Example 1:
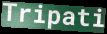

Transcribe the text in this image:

Tripati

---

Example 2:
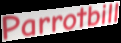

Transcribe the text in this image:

Parrotbill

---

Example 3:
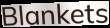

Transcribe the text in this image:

Blankets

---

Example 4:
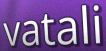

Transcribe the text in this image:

vatali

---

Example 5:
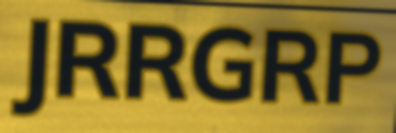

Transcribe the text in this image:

JRRGRP